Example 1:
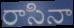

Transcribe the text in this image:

రాసినా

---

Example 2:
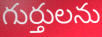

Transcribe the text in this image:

గుర్తులను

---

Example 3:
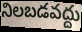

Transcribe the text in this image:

నిలబడవద్దు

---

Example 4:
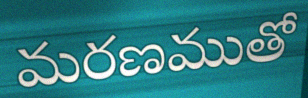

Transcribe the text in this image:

మరణముతో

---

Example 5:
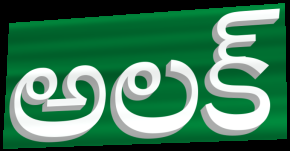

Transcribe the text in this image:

అలక్